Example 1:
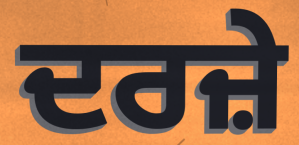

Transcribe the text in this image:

ਦਰਜ਼ੇ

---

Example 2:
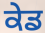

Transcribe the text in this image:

ਕੇਡ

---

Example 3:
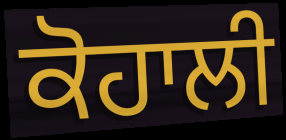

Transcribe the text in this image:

ਕੋਹਾਲੀ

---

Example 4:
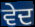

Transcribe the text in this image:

ਵੇਦ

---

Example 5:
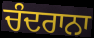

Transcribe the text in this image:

ਚੰਦਰਾਨਾ